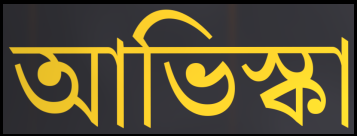
আভিস্কা